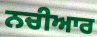
ਨਚੀਆਰ